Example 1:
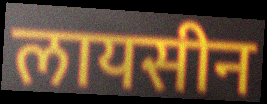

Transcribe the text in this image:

लायसीन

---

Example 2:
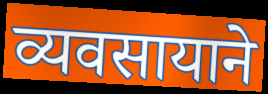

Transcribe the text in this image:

व्यवसायाने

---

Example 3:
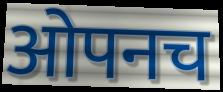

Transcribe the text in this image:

ओपनच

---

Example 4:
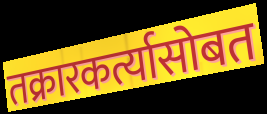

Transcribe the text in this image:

तक्रारकर्त्यासोबत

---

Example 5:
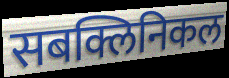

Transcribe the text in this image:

सबक्लिनिकल